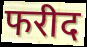
फरीद